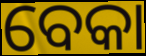
ବେକା